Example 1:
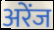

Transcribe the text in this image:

अरेंज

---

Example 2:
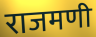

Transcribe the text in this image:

राजमणी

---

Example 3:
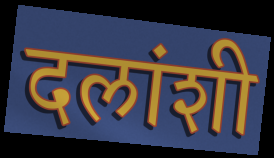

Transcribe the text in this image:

दलांशी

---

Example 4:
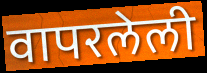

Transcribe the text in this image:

वापरलेली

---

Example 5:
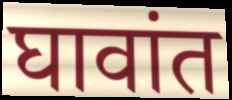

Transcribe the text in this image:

घावांत